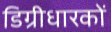
डिग्रीधारकों